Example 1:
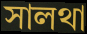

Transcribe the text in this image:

সালথা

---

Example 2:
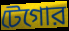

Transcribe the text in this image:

টেগোর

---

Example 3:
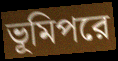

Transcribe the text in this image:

ভূমিপরে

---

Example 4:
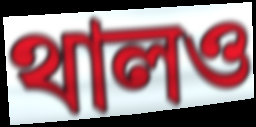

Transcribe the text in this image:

থালও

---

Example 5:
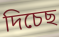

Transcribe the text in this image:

দিচেছ